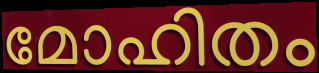
മോഹിതം